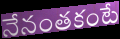
నేనంతకంటే